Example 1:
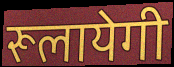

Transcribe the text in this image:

रूलायेगी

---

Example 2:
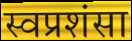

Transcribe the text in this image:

स्वप्रशंसा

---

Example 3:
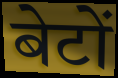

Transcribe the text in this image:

बेटों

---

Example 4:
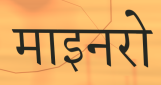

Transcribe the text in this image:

माइनरो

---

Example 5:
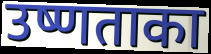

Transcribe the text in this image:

उष्णताका